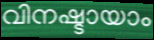
വിനഷ്ടായാം